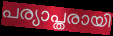
പര്യാപ്തരായി